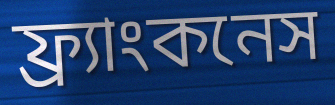
ফ্র্যাংকনেস